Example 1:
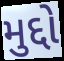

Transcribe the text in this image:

મુદ્દો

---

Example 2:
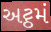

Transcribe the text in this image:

અટ્ઠમં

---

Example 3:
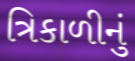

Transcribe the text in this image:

ત્રિકાળીનું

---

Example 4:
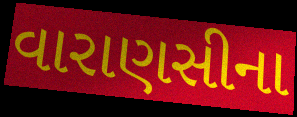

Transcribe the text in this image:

વારાણસીના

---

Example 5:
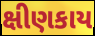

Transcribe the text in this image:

ક્ષીણકાય